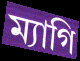
ম্যাগি